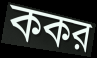
ককর